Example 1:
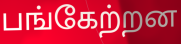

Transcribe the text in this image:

பங்கேற்றன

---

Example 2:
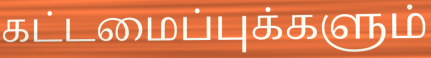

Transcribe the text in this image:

கட்டமைப்புக்களும்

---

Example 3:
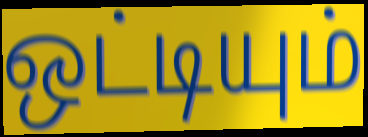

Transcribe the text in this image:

ஒட்டியும்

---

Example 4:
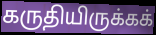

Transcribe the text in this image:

கருதியிருக்கக்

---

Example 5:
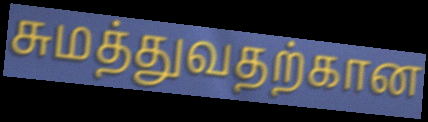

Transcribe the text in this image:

சுமத்துவதற்கான